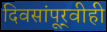
दिवसांपूर्वीही